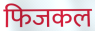
फिजकल